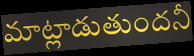
మాట్లాడుతుందనీ